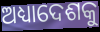
ଅଧ୍ୟାଦେଶକୁ